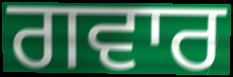
ਗਵਾਰ